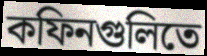
কফিনগুলিতে